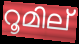
റൂമില്